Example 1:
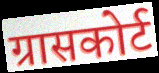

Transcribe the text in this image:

ग्रासकोर्ट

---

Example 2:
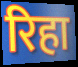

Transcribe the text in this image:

रिहा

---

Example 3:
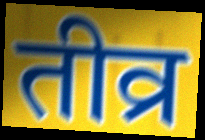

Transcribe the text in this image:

तीव्र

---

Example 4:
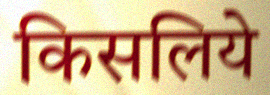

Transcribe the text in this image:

किसलिये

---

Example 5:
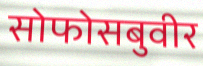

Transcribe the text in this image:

सोफोसबुवीर